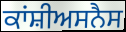
ਕਾਂਸ਼ੀਅਸਨੈਸ